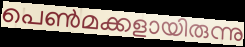
പെൺമക്കളായിരുന്നു